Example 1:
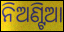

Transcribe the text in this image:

ନିଅଣ୍ଟିଆ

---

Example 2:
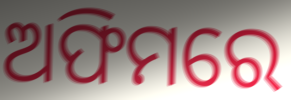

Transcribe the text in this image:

ଅଫିମରେ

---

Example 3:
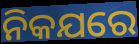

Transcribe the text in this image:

ନିକଯରେ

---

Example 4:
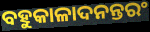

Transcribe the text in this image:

ବହୁକାଳାଦନନ୍ତରଂ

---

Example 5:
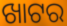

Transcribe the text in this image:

ଖାଟର